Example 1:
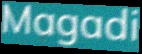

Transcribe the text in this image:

Magadi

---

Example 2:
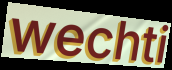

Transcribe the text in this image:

wechti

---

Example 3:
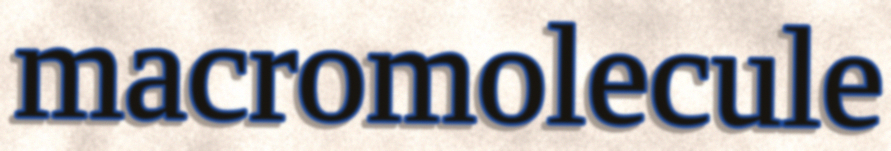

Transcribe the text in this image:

macromolecule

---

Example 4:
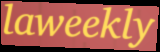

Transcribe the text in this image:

laweekly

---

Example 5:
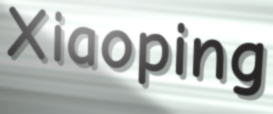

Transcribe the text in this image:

Xiaoping